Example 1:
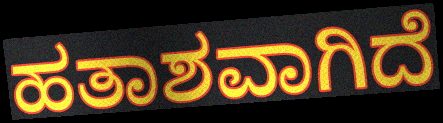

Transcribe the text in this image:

ಹತಾಶವಾಗಿದೆ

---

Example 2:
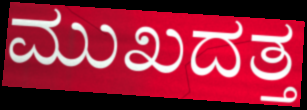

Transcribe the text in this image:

ಮುಖದತ್ತ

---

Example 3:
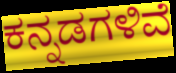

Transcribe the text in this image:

ಕನ್ನಡಗಳಿವೆ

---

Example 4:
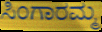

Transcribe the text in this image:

ಸಿಂಗಾರಮ್ಮ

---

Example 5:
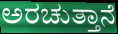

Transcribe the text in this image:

ಅರಚುತ್ತಾನೆ